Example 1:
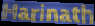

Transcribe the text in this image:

Harinath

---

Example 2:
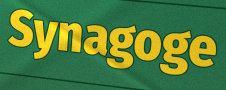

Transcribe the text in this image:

Synagoge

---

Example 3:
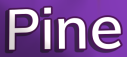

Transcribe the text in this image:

Pine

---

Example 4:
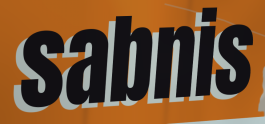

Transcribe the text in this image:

sabnis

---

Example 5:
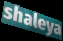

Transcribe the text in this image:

shaleya